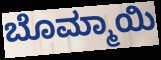
ಬೊಮ್ಮಾಯಿ